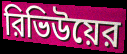
রিভিউয়ের